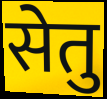
सेतु